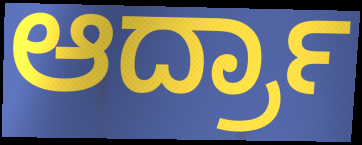
ಆರ್ದ್ರಾ